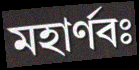
মহার্ণবঃ